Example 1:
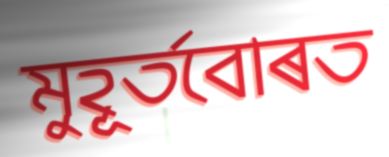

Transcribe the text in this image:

মুহূৰ্তবোৰত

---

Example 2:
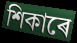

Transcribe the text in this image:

শিকাৰে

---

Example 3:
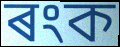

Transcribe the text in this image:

ৰংক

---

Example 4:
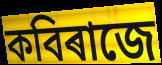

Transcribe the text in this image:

কবিৰাজে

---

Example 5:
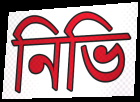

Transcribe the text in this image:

নিভি